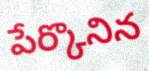
పేర్కొనిన